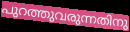
പുറത്തുവരുന്നതിനു